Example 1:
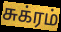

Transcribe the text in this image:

சுக்ரம்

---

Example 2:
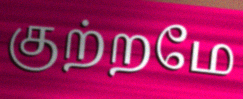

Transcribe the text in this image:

குற்றமே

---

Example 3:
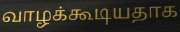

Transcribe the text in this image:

வாழக்கூடியதாக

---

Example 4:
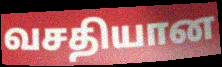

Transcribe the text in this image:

வசதியான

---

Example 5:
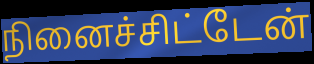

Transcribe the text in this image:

நினைச்சிட்டேன்